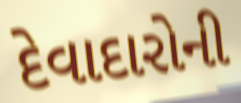
દેવાદારોની